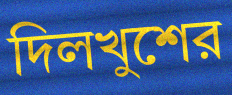
দিলখুশের